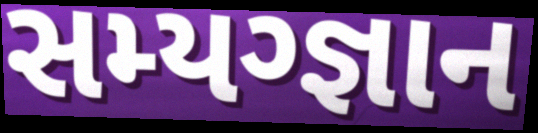
સમ્યગ્જ્ઞાન